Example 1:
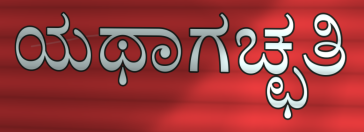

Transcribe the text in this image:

ಯಥಾಗಚ್ಛತಿ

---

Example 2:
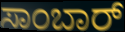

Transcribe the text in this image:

ಸಾಂಬಾರ್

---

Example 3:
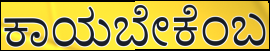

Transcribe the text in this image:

ಕಾಯಬೇಕೆಂಬ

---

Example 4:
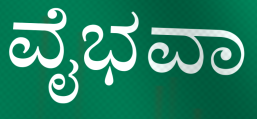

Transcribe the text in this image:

ವೈಭವಾ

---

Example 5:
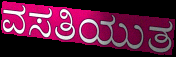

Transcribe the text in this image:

ವಸತಿಯುತ